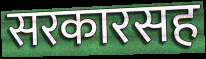
सरकारसह